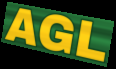
AGL